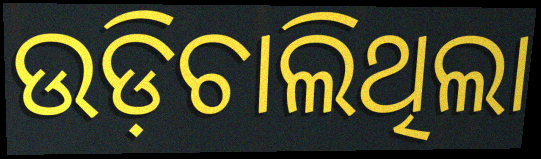
ଉଡ଼ିଚାଲିଥିଲା